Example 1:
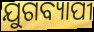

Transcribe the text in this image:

ଯୁଗବ୍ୟାପୀ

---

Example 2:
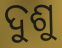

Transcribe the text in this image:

ଦୁଶୁ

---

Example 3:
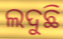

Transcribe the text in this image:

ଲଦୁଛି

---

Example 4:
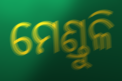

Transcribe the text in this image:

ମେଣ୍ଡୁଳି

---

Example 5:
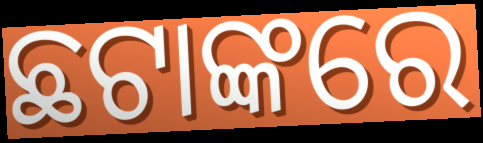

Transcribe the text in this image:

ଛଟାଙ୍କରେ